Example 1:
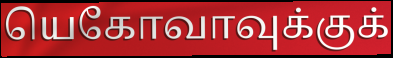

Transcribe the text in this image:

யெகோவாவுக்குக்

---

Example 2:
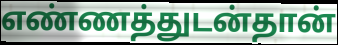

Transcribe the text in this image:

எண்ணத்துடன்தான்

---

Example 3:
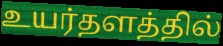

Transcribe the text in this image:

உயர்தளத்தில்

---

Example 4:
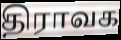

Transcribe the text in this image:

திராவக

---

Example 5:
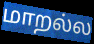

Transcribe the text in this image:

மாறல்ல